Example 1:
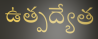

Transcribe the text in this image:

ఉత్పద్యేత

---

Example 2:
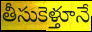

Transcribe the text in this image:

తీసుకెళ్తూనే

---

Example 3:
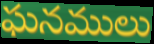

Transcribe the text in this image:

ఘనములు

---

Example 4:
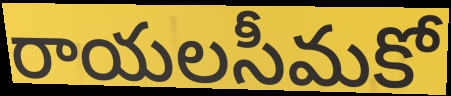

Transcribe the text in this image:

రాయలసీమకో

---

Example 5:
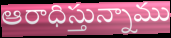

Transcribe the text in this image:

ఆరాధిస్తున్నాము